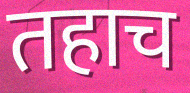
तहाच